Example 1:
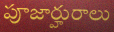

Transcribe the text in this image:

పూజార్హురాలు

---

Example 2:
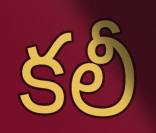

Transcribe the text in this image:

కలీ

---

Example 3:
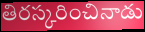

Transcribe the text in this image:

తిరస్కరించినాడు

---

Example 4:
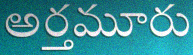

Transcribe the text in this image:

అర్తమూరు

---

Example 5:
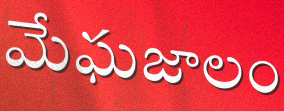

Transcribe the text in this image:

మేఘజాలం